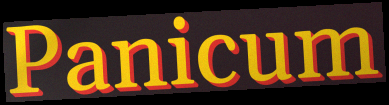
Panicum